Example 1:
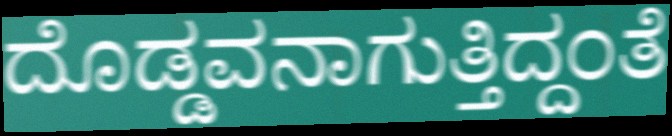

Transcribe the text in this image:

ದೊಡ್ಡವನಾಗುತ್ತಿದ್ದಂತೆ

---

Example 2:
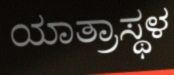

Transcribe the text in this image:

ಯಾತ್ರಾಸ್ಥಳ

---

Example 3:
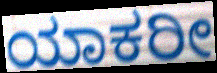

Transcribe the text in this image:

ಯಾಕರೀ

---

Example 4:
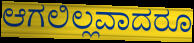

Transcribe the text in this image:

ಆಗಲಿಲ್ಲವಾದರೂ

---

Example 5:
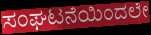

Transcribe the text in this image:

ಸಂಘಟನೆಯಿಂದಲೇ